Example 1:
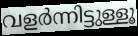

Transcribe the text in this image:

വളർന്നിട്ടുള്ളൂ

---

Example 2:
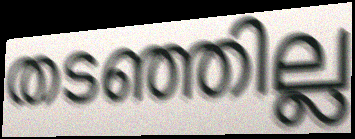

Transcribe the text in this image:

തടഞ്ഞില്ല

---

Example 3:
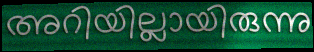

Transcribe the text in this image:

അറിയില്ലായിരുന്നു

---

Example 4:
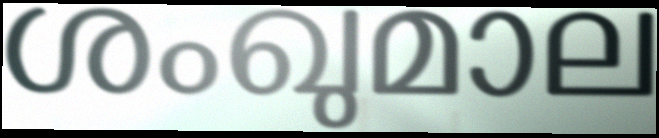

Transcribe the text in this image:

ശംഖുമാല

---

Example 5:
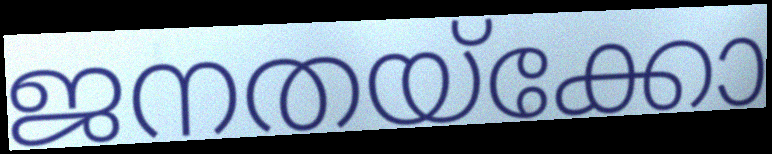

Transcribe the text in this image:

ജനതയ്ക്കോ